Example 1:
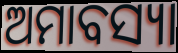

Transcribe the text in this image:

ଅମାବସ୍ୟା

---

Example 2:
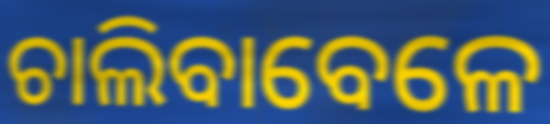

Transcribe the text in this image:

ଚାଲିବାବେଳେ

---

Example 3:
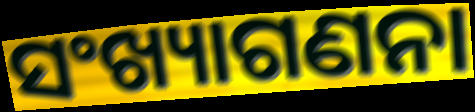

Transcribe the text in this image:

ସଂଖ୍ୟାଗଣନା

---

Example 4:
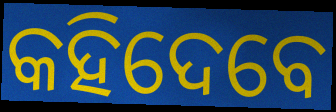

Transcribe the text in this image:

କହିଦେବେ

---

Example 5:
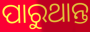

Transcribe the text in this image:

ପାରୁଥାନ୍ତ